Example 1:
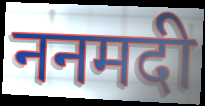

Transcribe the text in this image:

ननमदी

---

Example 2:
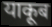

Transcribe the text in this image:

याकूब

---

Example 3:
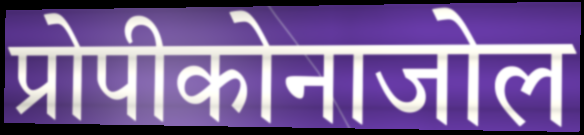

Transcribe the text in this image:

प्रोपीकोनाजोल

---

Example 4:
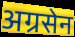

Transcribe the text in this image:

अग्रसेन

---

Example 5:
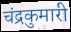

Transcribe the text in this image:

चंद्रकुमारी